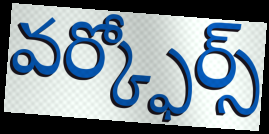
వర్క్ఫోర్స్